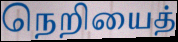
நெறியைத்